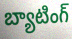
బ్యాటింగ్